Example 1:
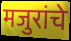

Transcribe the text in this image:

मजुरांचे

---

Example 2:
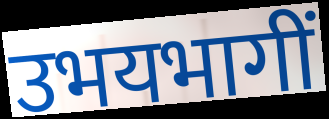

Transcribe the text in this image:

उभयभागीं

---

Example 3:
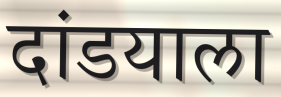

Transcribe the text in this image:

दांडयाला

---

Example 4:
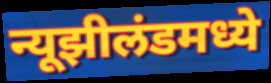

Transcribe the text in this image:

न्यूझीलंडमध्ये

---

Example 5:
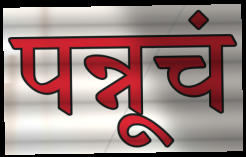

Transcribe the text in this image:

पन्नूचं